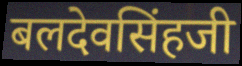
बलदेवसिंहजी